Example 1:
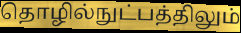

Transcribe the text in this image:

தொழில்நுட்பத்திலும்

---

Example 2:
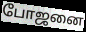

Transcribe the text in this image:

போஜனை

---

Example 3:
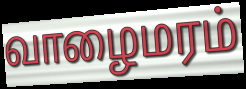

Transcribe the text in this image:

வாழைமரம்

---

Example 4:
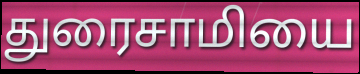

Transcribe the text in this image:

துரைசாமியை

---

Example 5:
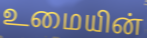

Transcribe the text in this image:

உமையின்